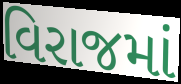
વિરાજમાં